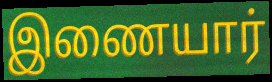
இணையார்